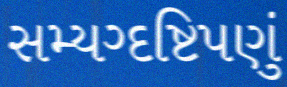
સમ્યગ્દષ્ટિપણું